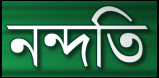
নন্দতি